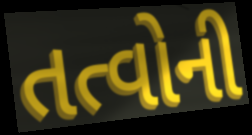
તત્વોની